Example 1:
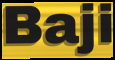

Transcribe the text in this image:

Baji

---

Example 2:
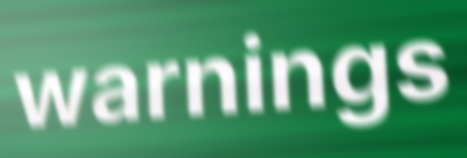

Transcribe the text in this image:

warnings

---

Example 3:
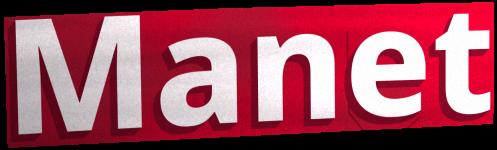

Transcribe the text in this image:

Manet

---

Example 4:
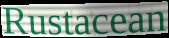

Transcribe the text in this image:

Rustacean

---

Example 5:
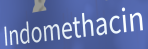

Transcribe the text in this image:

Indomethacin